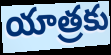
యాత్రకు